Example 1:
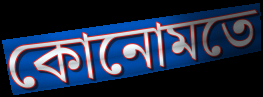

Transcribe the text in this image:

কোনোমতে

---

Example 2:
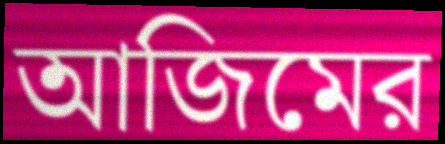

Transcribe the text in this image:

আজিমের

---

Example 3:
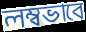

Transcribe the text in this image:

লম্বভাবে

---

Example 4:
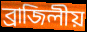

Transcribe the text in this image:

ব্রাজিলীয়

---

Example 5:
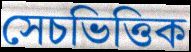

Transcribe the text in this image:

সেচভিত্তিক